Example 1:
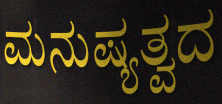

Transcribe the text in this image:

ಮನುಷ್ಯತ್ವದ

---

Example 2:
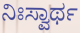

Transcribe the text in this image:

ನಿಃಸ್ವಾರ್ಥ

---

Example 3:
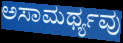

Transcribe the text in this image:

ಅಸಾಮರ್ಥ್ಯವು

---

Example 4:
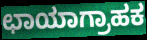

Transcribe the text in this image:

ಛಾಯಾಗ್ರಾಹಕ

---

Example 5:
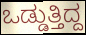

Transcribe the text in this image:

ಒಡ್ಡುತ್ತಿದ್ದ